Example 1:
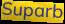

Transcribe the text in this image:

Suparb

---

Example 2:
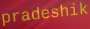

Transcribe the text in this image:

pradeshik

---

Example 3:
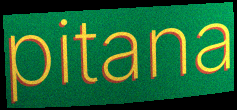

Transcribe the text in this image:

pitana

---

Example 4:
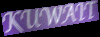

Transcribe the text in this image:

KUWAIT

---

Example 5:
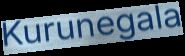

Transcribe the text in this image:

Kurunegala